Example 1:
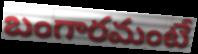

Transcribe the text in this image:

బంగారమంటే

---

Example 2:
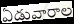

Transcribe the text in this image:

ఏడువారాల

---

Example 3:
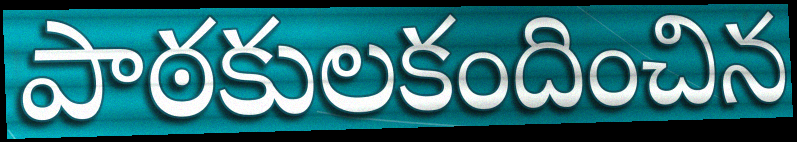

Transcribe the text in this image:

పాఠకులకందించిన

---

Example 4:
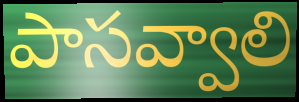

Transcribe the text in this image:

పాసవ్వాలి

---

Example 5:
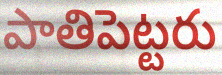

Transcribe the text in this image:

పాతిపెట్టరు